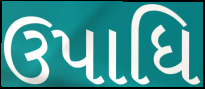
ઉપાધિ